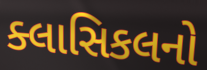
ક્લાસિકલનો